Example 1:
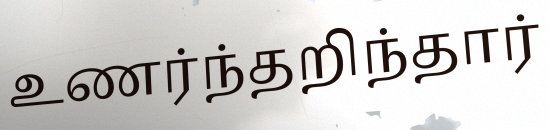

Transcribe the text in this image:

உணர்ந்தறிந்தார்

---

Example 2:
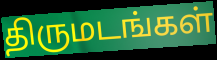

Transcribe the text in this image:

திருமடங்கள்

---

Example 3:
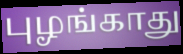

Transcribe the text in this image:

புழங்காது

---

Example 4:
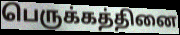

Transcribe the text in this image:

பெருக்கத்தினை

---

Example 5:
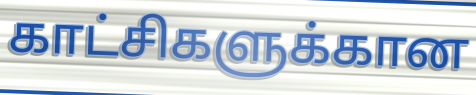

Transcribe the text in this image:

காட்சிகளுக்கான